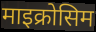
माइक्रोसिम